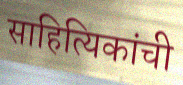
साहित्यिकांची